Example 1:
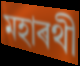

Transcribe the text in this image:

মহাৰথী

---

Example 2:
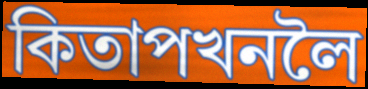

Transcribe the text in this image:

কিতাপখনলৈ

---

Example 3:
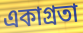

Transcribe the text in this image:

একাগ্ৰতা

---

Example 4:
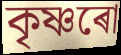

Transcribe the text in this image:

কৃষ্ণৰো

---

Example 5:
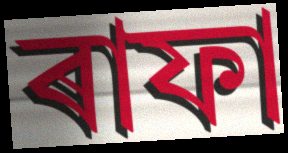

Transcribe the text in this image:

ৰাফা